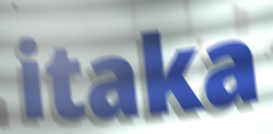
itaka